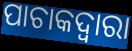
ପାଚାକଦ୍ଵାରା